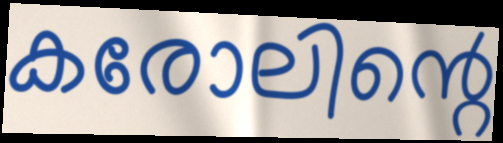
കരോലിന്റെ